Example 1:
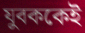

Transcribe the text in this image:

যুবককেই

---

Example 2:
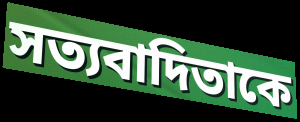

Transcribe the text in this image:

সত্যবাদিতাকে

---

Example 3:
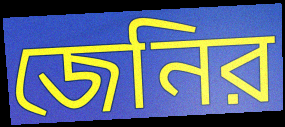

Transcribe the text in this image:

জেনির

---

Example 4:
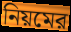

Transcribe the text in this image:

নিয়মের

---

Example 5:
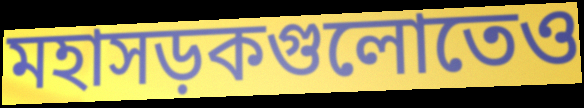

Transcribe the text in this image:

মহাসড়কগুলোতেও